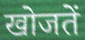
खोजतें